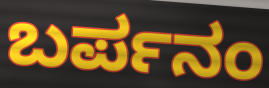
ಬರ್ಪನಂ